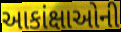
આકાંક્ષાઓની